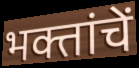
भक्तांचें